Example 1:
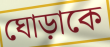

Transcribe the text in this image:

ঘোড়াকে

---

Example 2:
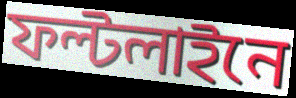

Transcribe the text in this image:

ফল্টলাইনে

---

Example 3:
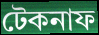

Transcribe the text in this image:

টেকনাফ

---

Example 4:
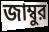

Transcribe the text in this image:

জাম্বুর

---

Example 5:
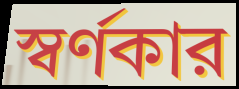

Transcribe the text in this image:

স্বর্ণকার